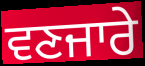
ਵਣਜਾਰੇ